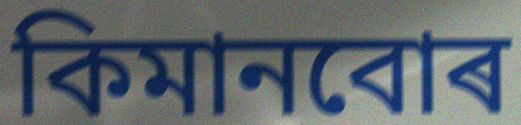
কিমানবোৰ